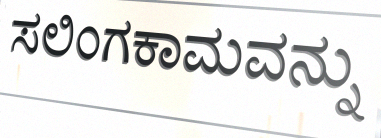
ಸಲಿಂಗಕಾಮವನ್ನು